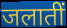
जलातीं